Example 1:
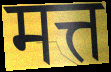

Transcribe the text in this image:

मत्त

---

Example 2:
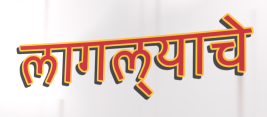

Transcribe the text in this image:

लागल्याचे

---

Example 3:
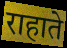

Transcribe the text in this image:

राहाते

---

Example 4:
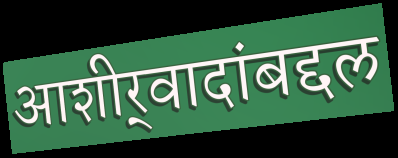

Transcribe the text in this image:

आशीर्वादांबद्दल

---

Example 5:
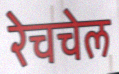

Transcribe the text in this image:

रेचचेल